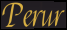
Perur